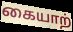
கையாற்